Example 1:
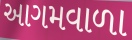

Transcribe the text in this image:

આગમવાળા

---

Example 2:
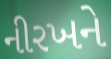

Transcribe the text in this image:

નીરખને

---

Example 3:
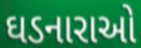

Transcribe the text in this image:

ઘડનારાઓ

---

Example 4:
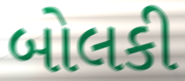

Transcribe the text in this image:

બોલકી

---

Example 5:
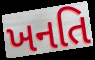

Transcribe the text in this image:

ખનતિ